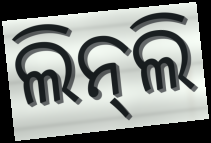
ଲିନ୍‌ଲି